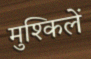
मुश्किलें